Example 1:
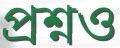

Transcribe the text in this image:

প্ৰশ্নও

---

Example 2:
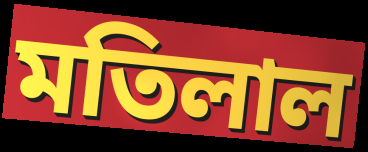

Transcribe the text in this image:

মতিলাল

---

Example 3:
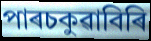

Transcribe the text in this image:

পাৰচকুৱাবিৰি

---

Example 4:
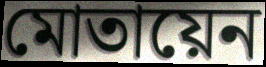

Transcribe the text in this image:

মোতায়েন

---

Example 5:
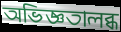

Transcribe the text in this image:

অভিজ্ঞতালব্ধ